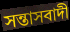
সন্তাসবাদী